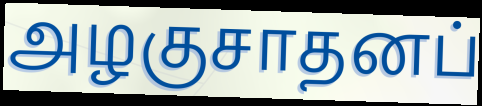
அழகுசாதனப்